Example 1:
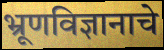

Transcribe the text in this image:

भ्रूणविज्ञानाचे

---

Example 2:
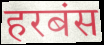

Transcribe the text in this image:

हरबंस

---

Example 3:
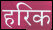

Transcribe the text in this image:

हरिक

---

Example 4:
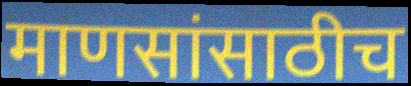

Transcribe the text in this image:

माणसांसाठीच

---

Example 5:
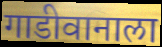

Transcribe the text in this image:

गाडीवानाला